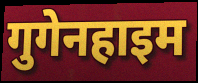
गुगेनहाइम